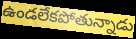
ఉండలేకపోతున్నాడు